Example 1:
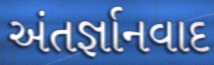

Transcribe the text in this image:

અંતર્જ્ઞાનવાદ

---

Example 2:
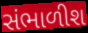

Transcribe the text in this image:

સંભાળીશ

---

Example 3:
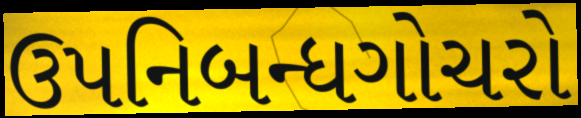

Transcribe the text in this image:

ઉપનિબન્ધગોચરો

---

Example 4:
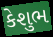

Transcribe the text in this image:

કેશુભ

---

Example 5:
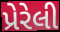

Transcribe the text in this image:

પ્રેરેલી